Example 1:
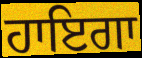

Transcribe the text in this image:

ਹਾਇਗਾ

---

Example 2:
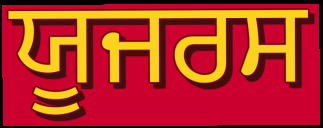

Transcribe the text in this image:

ਯੂਜਰਸ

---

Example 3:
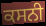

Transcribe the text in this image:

ਕਸਨੀ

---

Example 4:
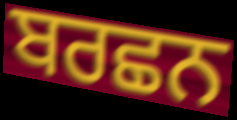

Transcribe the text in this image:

ਬਰਛਨ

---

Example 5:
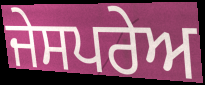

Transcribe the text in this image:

ਜੇਸਪਰੇਅ